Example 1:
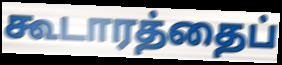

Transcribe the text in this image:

கூடாரத்தைப்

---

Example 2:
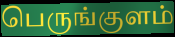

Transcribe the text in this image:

பெருங்குளம்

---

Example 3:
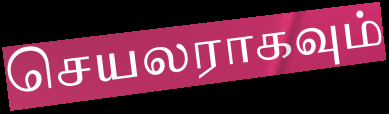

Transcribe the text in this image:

செயலராகவும்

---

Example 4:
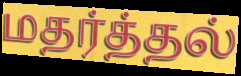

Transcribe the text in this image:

மதர்த்தல்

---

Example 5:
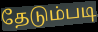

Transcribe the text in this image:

தேடும்படி